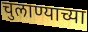
चुलाण्याच्या